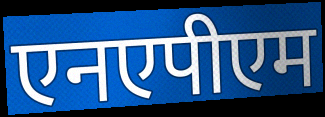
एनएपीएम